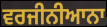
ਵਰਜੀਨੀਆਨਾ